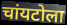
चांयटोला